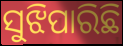
ସୁଝିପାରିଛି